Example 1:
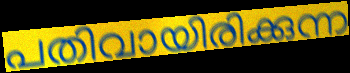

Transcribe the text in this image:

പതിവായിരിക്കുന്ന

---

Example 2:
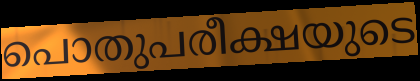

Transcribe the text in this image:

പൊതുപരീക്ഷയുടെ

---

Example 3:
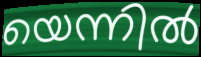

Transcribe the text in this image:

യെന്നിൽ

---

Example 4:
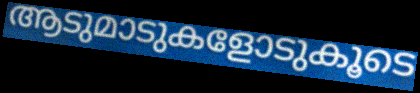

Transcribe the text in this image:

ആടുമാടുകളോടുകൂടെ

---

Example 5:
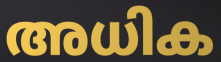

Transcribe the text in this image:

അധിക